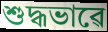
শুদ্ধভাৱে